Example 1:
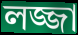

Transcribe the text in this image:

লজ্জা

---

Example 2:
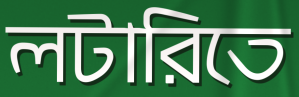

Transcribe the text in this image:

লটারিতে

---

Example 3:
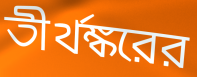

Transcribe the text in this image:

তীর্থঙ্করের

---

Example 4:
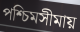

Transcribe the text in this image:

পশ্চিমসীমায়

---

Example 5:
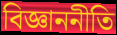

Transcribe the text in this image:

বিজ্ঞাননীতি